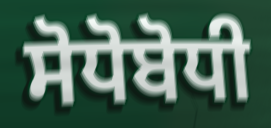
ਸੋਧੋਬੋਧੀ